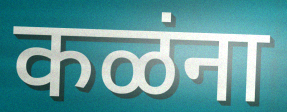
कळंना